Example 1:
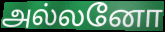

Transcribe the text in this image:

அல்லனோ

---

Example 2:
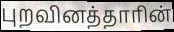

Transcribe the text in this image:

புறவினத்தாரின்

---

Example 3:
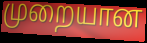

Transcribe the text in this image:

முறையான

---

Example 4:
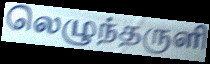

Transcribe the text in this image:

லெழுந்தருளி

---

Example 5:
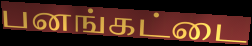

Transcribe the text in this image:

பனங்கட்டை